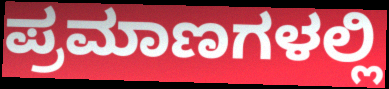
ಪ್ರಮಾಣಗಳಲ್ಲಿ